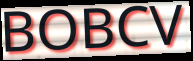
BOBCV